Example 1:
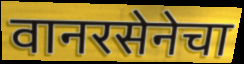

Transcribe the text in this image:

वानरसेनेचा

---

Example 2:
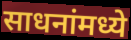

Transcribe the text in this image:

साधनांमध्ये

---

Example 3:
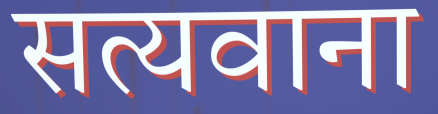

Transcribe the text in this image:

सत्यवाना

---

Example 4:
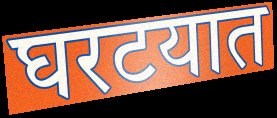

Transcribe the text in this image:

घरटयात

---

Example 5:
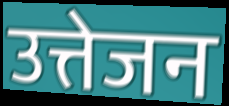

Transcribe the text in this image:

उत्तेजन